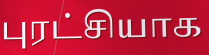
புரட்சியாக